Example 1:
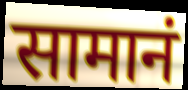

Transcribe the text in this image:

सामानं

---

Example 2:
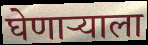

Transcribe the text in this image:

घेणार्‍याला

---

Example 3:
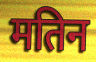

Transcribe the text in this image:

मतिन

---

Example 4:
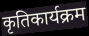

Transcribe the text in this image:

कृतिकार्यक्रम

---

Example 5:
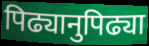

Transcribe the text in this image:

पिढ्यानुपिढ्या